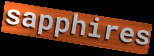
sapphires